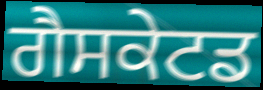
ਗੈਸਕੇਟਡ